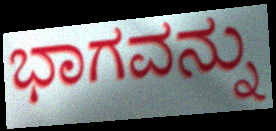
ಭಾಗವನ್ನು